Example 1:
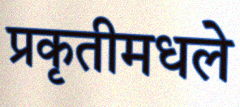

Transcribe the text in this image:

प्रकृतीमधले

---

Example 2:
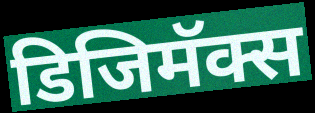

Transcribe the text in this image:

डिजिमॅक्स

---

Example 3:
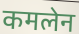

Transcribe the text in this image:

कमलेन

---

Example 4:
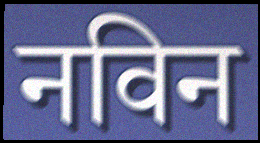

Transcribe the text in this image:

नविन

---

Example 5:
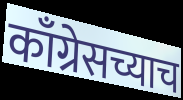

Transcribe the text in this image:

काँग्रेसच्याच